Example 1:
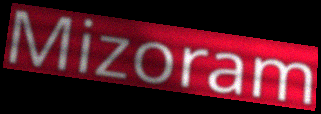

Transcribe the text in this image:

Mizoram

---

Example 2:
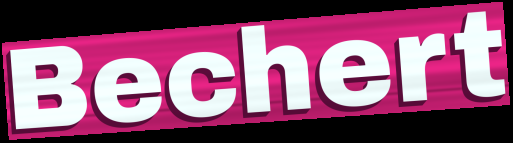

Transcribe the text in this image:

Bechert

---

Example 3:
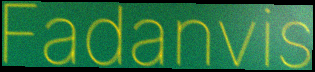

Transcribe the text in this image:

Fadanvis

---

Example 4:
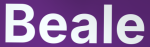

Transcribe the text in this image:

Beale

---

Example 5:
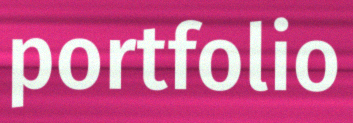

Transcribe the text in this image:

portfolio